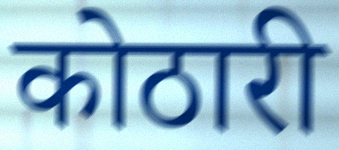
कोठारी